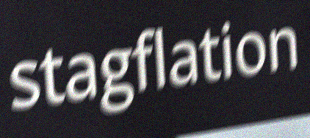
stagflation